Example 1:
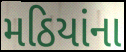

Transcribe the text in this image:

મઠિયાંના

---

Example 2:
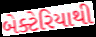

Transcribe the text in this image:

બેક્ટેરિયાથી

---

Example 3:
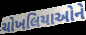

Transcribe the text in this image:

ચોખલિયાઓને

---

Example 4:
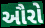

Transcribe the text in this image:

ઔરો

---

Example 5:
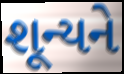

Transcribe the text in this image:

શૂન્યને